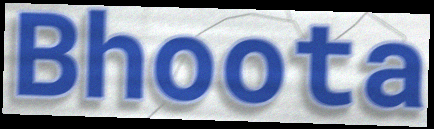
Bhoota